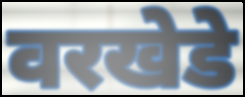
वरखेडे